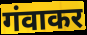
गंवाकर